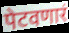
पेटवणारं